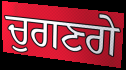
ਚੁਗਣਗੇ